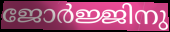
ജോർജ്ജിനു